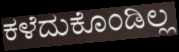
ಕಳೆದುಕೊಂಡಿಲ್ಲ